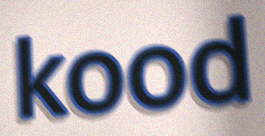
kood